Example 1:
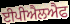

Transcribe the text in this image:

ਈਪੀਐਲਐਫ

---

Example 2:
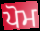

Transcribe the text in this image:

ਪੋਮ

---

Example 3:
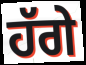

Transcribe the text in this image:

ਹੱਗੇ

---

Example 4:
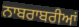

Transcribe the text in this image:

ਨਾਬਰਾਬਰੀਆਂ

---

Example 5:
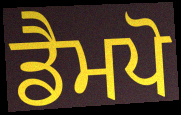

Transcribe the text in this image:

ਡੈਮਪੋ